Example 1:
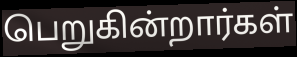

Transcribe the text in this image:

பெறுகின்றார்கள்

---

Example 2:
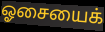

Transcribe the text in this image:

ஓசையைக்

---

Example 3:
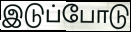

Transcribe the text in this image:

இடுப்போடு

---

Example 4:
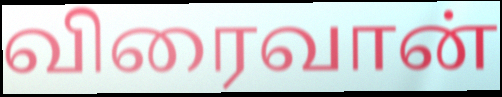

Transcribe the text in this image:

விரைவான்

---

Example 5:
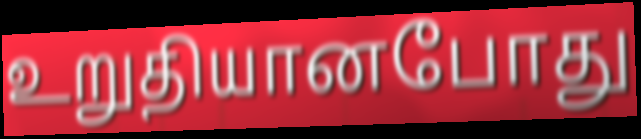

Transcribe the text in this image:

உறுதியானபோது